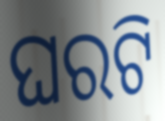
ଘରଟି